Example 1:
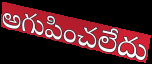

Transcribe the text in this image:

అగుపించలేదు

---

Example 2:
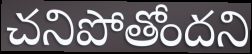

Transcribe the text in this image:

చనిపోతోందని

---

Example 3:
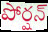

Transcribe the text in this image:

పోర్షన్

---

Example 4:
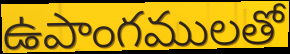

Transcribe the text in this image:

ఉపాంగములతో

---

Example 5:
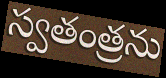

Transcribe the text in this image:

స్వతంత్రను